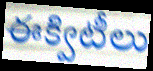
ఈక్విటీలు